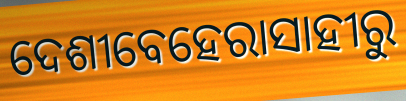
ଦେଶୀବେହେରାସାହୀରୁ